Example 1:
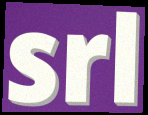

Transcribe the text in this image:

srl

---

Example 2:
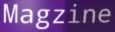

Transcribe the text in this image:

Magzine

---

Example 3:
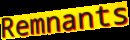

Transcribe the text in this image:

Remnants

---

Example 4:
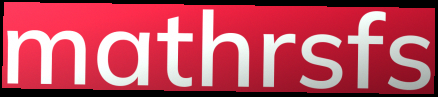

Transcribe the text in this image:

mathrsfs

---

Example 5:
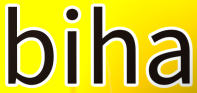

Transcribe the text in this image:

biha